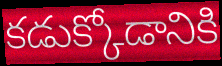
కడుక్కోడానికి